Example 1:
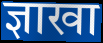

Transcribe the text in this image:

ज्ञाखा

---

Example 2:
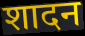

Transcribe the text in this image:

शादन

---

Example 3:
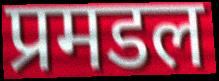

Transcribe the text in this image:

प्रमडल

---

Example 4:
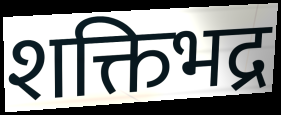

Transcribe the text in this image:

शक्तिभद्र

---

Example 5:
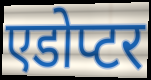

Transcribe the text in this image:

एडोप्टर